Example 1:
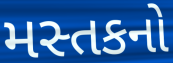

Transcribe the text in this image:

મસ્તકનો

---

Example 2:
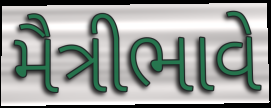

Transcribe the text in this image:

મૈત્રીભાવે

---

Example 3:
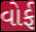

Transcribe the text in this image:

વોર્ફ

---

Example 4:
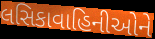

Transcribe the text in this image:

લસિકાવાહિનીઓને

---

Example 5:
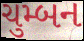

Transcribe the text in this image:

ચુમ્બન